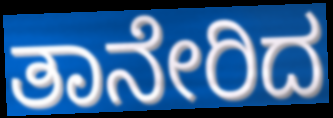
ತಾನೇರಿದ